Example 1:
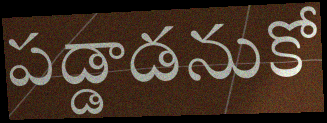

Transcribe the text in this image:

పడ్డాడనుకో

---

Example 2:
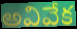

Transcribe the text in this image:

అవివేక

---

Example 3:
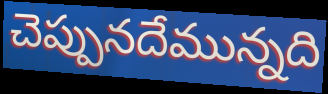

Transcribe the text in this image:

చెప్పునదేమున్నది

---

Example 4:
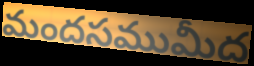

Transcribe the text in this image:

మందసముమీద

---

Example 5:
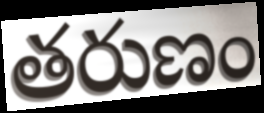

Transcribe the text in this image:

తరుణం